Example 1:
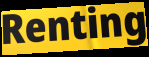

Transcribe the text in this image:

Renting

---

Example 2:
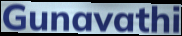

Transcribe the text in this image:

Gunavathi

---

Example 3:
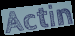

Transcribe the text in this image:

Actin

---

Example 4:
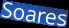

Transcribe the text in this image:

Soares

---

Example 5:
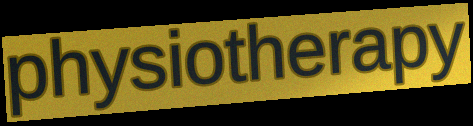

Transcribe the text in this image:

physiotherapy